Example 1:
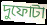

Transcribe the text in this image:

দুফোটা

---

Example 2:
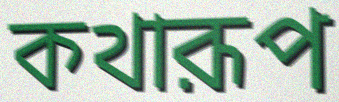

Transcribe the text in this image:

কথারূপ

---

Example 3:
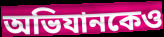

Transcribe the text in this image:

অভিযানকেও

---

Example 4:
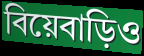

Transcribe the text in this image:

বিয়েবাড়িও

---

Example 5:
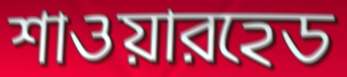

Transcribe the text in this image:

শাওয়ারহেড